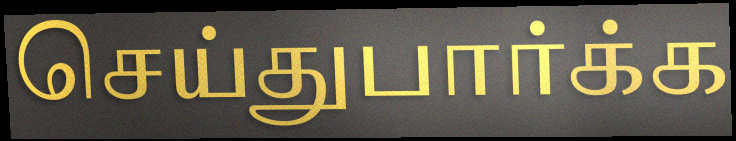
செய்துபார்க்க